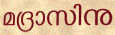
മദ്രാസിനു